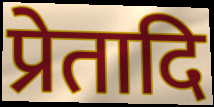
प्रेतादि